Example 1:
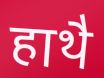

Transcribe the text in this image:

हाथै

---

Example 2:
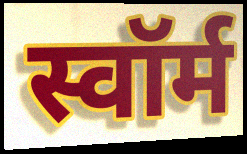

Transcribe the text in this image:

स्वॉर्म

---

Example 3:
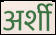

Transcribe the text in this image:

अर्शी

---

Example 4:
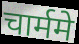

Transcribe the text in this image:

चार्ममे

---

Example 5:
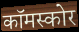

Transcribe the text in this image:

कॉमस्कोर